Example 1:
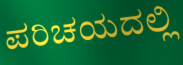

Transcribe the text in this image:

ಪರಿಚಯದಲ್ಲಿ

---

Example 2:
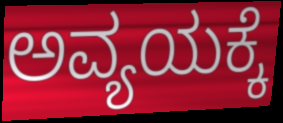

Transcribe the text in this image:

ಅವ್ಯಯಕ್ಕೆ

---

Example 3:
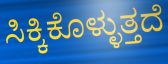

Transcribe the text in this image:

ಸಿಕ್ಕಿಕೊಳ್ಳುತ್ತದೆ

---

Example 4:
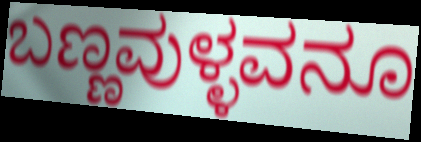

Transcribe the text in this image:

ಬಣ್ಣವುಳ್ಳವನೂ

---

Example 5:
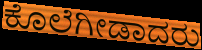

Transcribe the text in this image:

ಕೊಲೆಗೀಡಾದರು